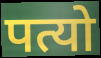
पत्यो